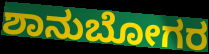
ಶಾನುಬೋಗರ